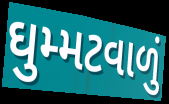
ઘુમ્મટવાળું